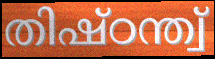
തിഷ്ഠന്ത്വ്